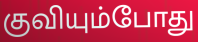
குவியும்போது